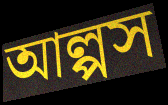
আল্পস